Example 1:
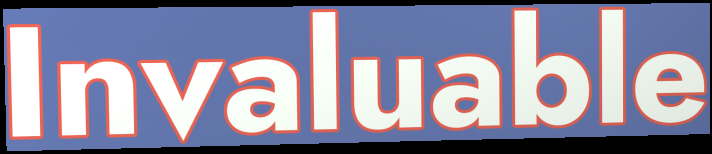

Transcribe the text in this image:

Invaluable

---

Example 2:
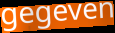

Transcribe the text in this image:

gegeven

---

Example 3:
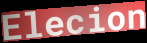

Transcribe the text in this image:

Elecion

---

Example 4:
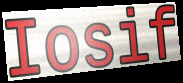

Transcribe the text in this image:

Iosif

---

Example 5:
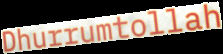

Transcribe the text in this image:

Dhurrumtollah